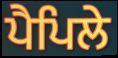
ਪੈਪਿਲੇ